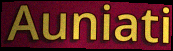
Auniati